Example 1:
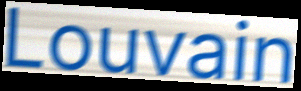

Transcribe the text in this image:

Louvain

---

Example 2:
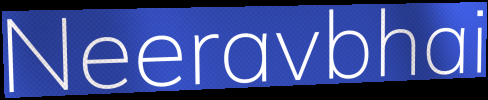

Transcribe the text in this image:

Neeravbhai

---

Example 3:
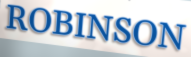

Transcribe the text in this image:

ROBINSON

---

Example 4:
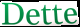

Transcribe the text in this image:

Dette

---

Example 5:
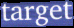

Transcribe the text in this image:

target